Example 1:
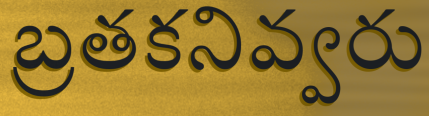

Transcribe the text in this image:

బ్రతకనివ్వరు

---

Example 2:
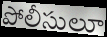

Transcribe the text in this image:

పోలీసులూ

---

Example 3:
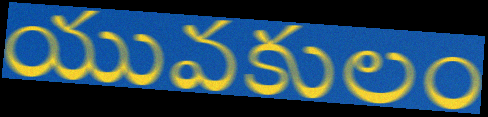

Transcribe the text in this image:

యువకులం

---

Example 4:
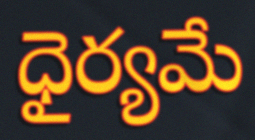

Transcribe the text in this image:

ధైర్యమే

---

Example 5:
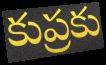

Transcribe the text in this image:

కుప్రకు